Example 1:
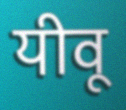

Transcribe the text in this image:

यीवू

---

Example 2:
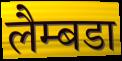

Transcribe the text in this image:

लैम्बडा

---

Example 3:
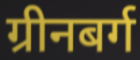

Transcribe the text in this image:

ग्रीनबर्ग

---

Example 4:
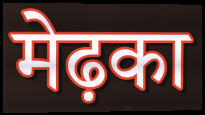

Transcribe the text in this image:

मेढ़का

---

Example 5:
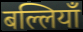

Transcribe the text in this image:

बल्लियाँ